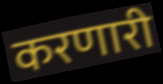
करणारी